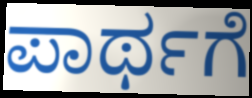
ಪಾರ್ಥಗೆ